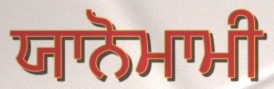
ਯਾਨੋਮਾਮੀ